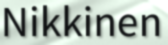
Nikkinen